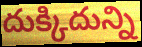
దుక్కిదున్ని